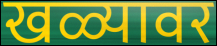
खळ्यावर